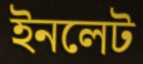
ইনলেট